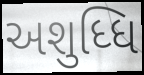
અશુધ્ધિ